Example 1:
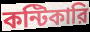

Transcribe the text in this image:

কন্টিকারি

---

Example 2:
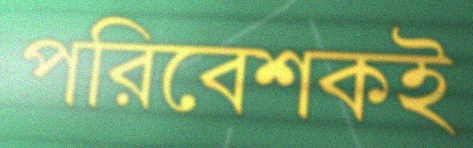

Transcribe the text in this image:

পরিবেশকই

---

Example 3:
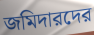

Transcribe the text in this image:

জমিদারদের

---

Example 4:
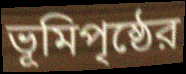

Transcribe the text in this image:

ভূমিপৃষ্ঠের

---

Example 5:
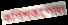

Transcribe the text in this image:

কপিশকপোল